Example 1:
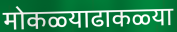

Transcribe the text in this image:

मोकळ्याढाकळ्या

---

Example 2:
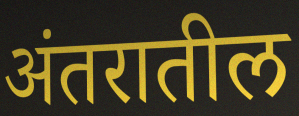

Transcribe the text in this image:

अंतरातील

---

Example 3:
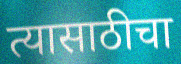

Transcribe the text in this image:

त्यासाठीचा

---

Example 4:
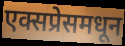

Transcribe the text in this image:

एक्सप्रेसमधून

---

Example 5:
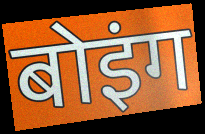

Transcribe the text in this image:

बोइंग